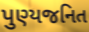
પુણ્યજનિત